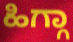
ಹಿಗ್ಗಾ